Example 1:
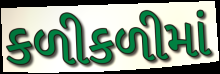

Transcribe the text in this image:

કળીકળીમાં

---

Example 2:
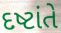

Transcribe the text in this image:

દષ્ટાંતે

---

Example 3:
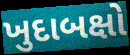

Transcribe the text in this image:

ખુદાબક્ષો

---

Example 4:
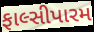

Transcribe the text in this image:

ફાલ્સીપારમ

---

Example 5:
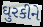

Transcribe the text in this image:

ઘુરકીને